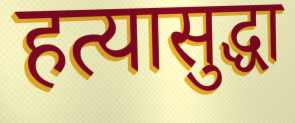
हत्यासुद्धा